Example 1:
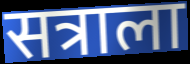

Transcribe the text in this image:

सत्राला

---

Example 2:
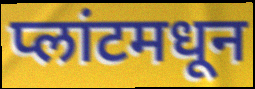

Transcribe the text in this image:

प्लांटमधून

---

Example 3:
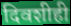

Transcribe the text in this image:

दिवशीही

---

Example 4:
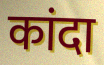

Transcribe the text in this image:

कांदा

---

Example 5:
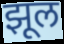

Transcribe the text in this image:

झूल